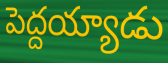
పెద్దయ్యాడు